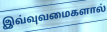
இவ்வுவமைகளால்